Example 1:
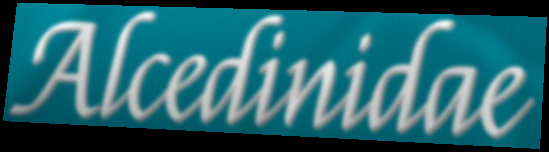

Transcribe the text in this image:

Alcedinidae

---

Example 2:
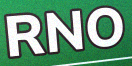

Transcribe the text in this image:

RNO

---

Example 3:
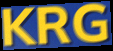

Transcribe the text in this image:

KRG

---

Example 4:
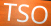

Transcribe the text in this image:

TSO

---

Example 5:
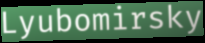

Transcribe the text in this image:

Lyubomirsky